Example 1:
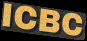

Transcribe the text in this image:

ICBC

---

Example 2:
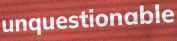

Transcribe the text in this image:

unquestionable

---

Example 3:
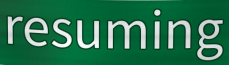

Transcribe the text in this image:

resuming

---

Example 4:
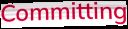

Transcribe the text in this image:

Committing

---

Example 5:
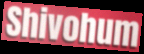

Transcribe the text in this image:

Shivohum